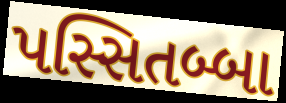
પસ્સિતબ્બા